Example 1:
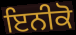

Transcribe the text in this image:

ਇਨੀਕੋ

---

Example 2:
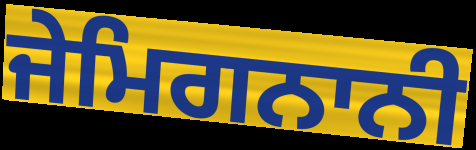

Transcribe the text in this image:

ਜੇਮਿਗਨਾਨੀ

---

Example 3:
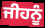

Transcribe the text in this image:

ਜੀਹਨੂੰ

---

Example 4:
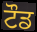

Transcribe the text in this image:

ਟੌਡ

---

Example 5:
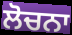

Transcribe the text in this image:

ਲੋਚਨਾ